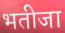
भतीजा